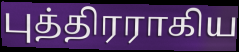
புத்திரராகிய